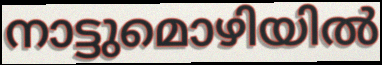
നാട്ടുമൊഴിയിൽ